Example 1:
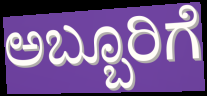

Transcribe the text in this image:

ಅಬ್ಬೂರಿಗೆ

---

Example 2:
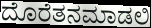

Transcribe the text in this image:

ದೊರೆತನಮಾಡಲಿ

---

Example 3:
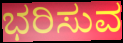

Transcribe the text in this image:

ಭರಿಸುವ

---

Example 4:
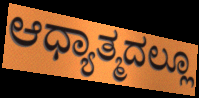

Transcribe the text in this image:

ಆಧ್ಯಾತ್ಮದಲ್ಲೂ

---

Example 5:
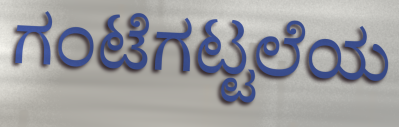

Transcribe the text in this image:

ಗಂಟೆಗಟ್ಟಲೆಯ